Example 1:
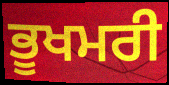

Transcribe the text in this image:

ਭੂਖਮਰੀ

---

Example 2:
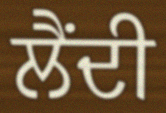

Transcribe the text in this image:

ਲੈਂਦੀ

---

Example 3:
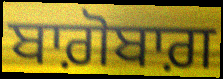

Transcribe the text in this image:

ਬਾਗ਼ੋਬਾਗ਼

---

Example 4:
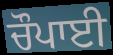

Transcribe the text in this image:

ਚੌਪਾਈ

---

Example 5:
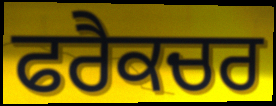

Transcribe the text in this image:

ਫਰੈਕਚਰ